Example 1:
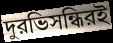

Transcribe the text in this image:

দুরভিসন্ধিরই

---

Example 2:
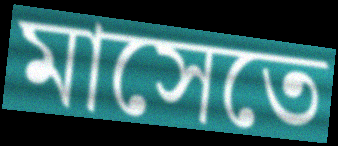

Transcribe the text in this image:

মাসেতে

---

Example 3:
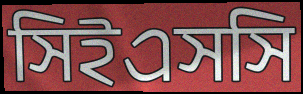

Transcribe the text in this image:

সিইএসসি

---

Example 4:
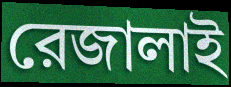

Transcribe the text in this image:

রেজালাই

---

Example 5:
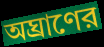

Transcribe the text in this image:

অঘ্রাণের